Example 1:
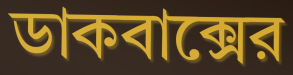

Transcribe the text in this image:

ডাকবাক্সের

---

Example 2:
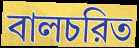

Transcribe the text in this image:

বালচরিত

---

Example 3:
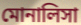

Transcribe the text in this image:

মোনালিসা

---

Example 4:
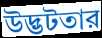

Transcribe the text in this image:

উদ্ভটতার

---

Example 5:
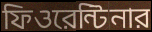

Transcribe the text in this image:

ফিওরেন্টিনার